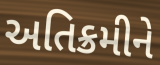
અતિક્રમીને